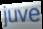
juve